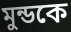
মুন্ডকে